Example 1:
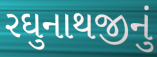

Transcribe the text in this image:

રઘુનાથજીનું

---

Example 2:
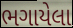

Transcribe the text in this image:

ભગાયેલા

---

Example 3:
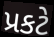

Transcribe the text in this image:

પ્રકટે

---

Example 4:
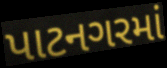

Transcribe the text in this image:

પાટનગરમાં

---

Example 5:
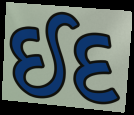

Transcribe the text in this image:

ઈદ